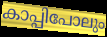
കാപ്പിപോലും